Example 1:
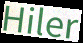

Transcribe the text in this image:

Hiler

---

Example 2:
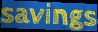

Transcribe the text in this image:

savings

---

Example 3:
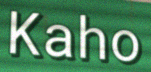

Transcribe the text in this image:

Kaho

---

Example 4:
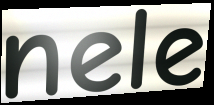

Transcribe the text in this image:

nele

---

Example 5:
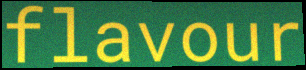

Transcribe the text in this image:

flavour